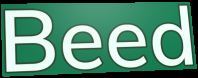
Beed